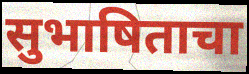
सुभाषिताचा